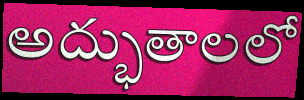
అద్భుతాలలో